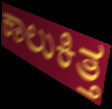
ಕಾಲುಕಿತ್ತ